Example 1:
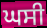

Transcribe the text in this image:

ਘਸੀ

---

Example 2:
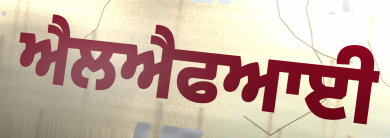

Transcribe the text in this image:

ਐਲਐਫਆਈ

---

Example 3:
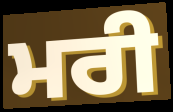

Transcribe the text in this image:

ਮਰੀ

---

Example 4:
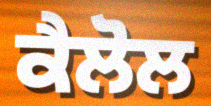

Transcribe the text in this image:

ਕੈਲੋਲ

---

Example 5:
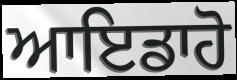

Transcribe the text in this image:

ਆਇਡਾਹੋ